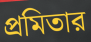
প্রমিতার